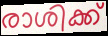
രാശിക്ക്